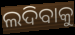
ଲଦିବାକୁ